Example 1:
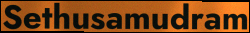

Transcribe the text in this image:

Sethusamudram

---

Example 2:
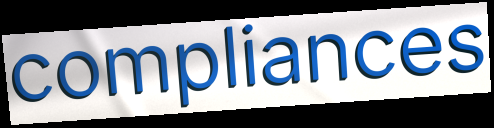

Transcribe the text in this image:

compliances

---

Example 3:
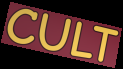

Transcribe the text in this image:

CULT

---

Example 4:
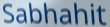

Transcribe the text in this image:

Sabhahit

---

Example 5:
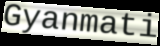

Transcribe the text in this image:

Gyanmati